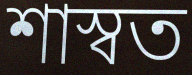
শাস্বত